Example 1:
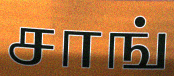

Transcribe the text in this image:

சாங்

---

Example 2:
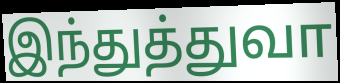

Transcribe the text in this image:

இந்துத்துவா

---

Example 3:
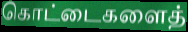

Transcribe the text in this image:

கொட்டைகளைத்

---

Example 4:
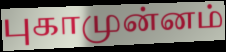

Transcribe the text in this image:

புகாமுன்னம்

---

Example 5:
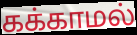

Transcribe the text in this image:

கக்காமல்